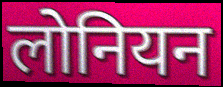
लोनियन